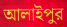
আলাইপুর